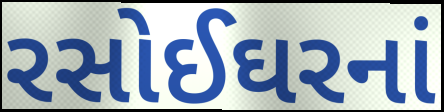
રસોઈઘરનાં